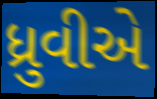
ધ્રુવીએ